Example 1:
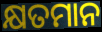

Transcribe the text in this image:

କ୍ଷତମାନ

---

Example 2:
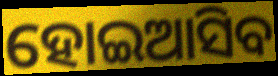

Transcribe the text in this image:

ହୋଇଆସିବ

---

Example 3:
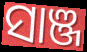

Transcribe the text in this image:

ସାଞ୍ଜ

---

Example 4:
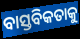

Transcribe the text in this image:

ବାସ୍ତବିକତାକୁ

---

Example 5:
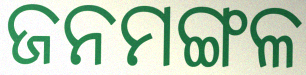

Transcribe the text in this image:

ଜନମଙ୍ଗଳ